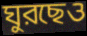
ঘুরছেও